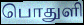
பொதுளி